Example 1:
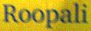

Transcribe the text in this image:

Roopali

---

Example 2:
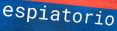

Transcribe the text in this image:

espiatorio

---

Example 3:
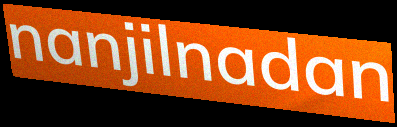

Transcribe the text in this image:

nanjilnadan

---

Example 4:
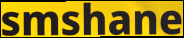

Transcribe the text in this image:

smshane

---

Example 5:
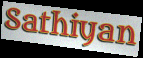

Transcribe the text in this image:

Sathiyan